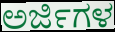
ಅರ್ಜಿಗಳ